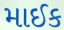
માઈક